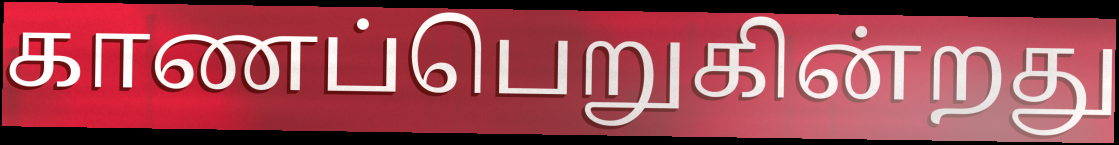
காணப்பெறுகின்றது